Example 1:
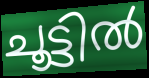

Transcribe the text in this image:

ചൂട്ടിൽ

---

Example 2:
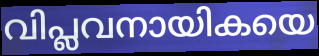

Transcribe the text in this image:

വിപ്ലവനായികയെ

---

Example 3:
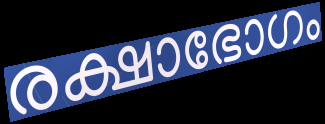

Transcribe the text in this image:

രക്ഷാഭോഗം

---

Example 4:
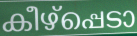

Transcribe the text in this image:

കീഴ്പ്പെടാ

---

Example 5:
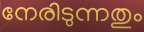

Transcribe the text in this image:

നേരിടുന്നതും